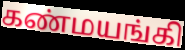
கண்மயங்கி